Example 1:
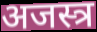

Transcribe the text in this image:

अजस्त्र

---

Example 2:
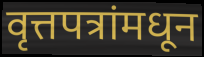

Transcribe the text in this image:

वृत्तपत्रांमधून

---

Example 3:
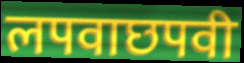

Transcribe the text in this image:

लपवाछपवी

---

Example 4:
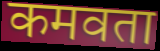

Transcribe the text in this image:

कमवता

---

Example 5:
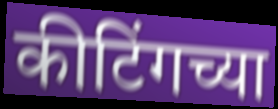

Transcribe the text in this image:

कीटिंगच्या